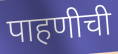
पाहणीची